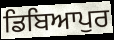
ਡਿਬਿਆਪੁਰ